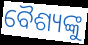
ବୈଶ୍ୟଙ୍କୁ